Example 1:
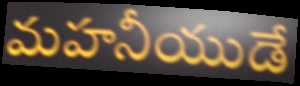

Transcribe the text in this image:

మహనీయుడే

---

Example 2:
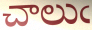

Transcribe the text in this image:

చాలుఁ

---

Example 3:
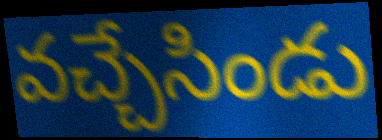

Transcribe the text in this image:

వచ్చేసిండు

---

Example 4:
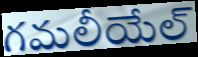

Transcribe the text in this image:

గమలీయేల్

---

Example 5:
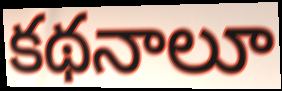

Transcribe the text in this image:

కథనాలూ